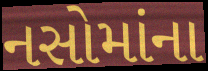
નસોમાંના